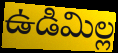
ఉడిమిల్ల